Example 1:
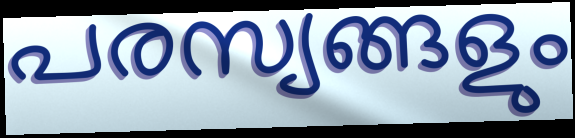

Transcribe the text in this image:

പരസ്യങ്ങളും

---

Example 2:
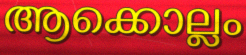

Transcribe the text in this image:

ആക്കൊല്ലം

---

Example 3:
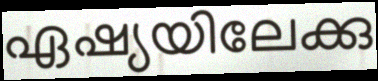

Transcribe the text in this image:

ഏഷ്യയിലേക്കു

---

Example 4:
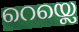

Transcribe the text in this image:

റെയ്ലെ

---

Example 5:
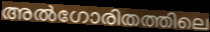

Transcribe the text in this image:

അൽഗോരിതത്തിലെ